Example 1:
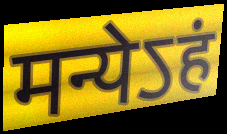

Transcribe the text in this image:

मन्येऽहं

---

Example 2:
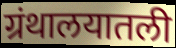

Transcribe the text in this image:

ग्रंथालयातली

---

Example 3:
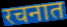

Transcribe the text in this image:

रचनात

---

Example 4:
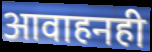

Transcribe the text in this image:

आवाहनही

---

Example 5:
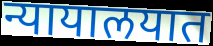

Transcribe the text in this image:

न्यायालयात